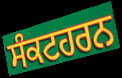
ਸੰਕਟਹਰਨ